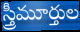
స్త్రీమూర్తుల